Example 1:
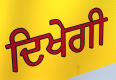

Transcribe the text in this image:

ਦਿਖੇਗੀ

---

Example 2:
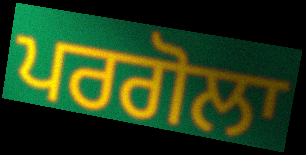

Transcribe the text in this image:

ਪਰਗੋਲਾ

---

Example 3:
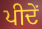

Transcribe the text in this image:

ਪੀਦੇਂ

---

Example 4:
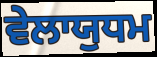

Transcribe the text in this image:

ਵੇਲਾਯੁਧਮ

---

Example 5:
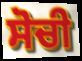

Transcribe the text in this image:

ਸੋਚੀ